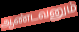
ஆண்டவனும்